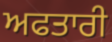
ਅਫਤਾਰੀ